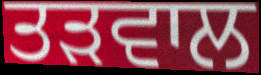
ਤੜਵਾਲ